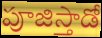
పూజిస్తాడో